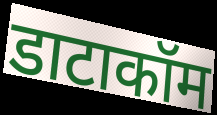
डाटाकॉम